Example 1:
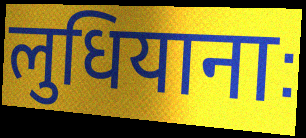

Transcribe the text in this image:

लुधियानाः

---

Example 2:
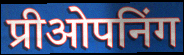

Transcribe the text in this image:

प्रीओपनिंग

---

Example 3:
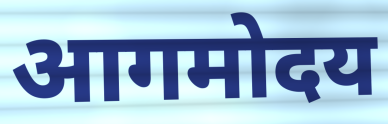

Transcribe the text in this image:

आगमोदय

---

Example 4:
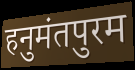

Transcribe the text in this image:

हनुमंतपुरम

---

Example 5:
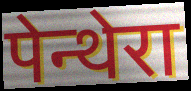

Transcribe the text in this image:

पेन्थेरा